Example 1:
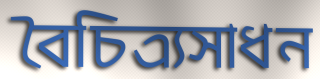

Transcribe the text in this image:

বৈচিত্র্যসাধন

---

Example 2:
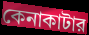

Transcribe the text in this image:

কেনাকাটার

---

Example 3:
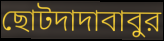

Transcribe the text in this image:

ছোটদাদাবাবুর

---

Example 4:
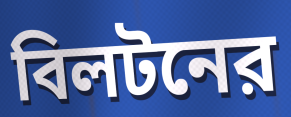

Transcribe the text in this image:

বিলটনের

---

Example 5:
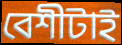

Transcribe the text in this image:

বেশীটাই